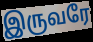
இருவரே